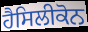
ਹੈਸਿਲੀਕੋਨ